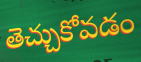
తెచ్చుకోవడం